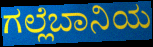
ಗಲ್ಲೆಬಾನಿಯ